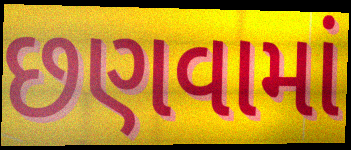
છણવામાં